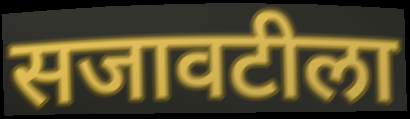
सजावटीला